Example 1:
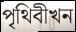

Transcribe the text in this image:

পৃথিবীখন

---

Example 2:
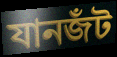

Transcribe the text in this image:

যানজঁট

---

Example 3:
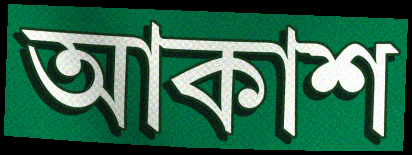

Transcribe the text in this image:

আকাশ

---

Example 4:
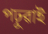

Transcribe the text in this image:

পঢ়ুৱাই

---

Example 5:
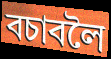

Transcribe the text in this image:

বচাবলৈ